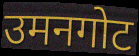
उमनगोट